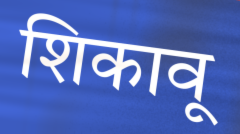
शिकावू